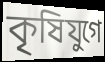
কৃষিযুগে